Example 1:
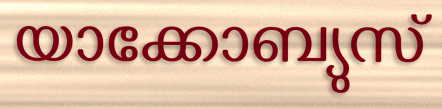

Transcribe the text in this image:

യാക്കോബ്യുസ്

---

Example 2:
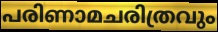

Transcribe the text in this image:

പരിണാമചരിത്രവും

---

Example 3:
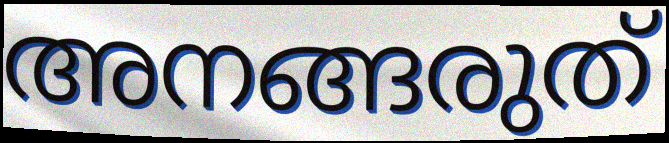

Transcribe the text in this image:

അനങ്ങരുത്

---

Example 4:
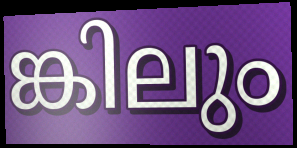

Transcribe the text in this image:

ങ്കിലും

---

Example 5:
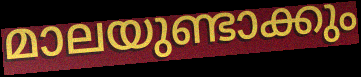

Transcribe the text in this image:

മാലയുണ്ടാക്കും